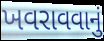
ખવરાવવાનું